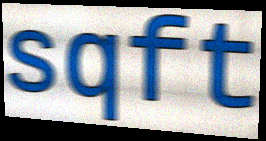
sqft